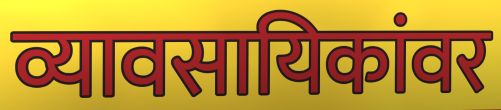
व्यावसायिकांवर